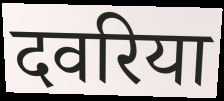
दवरिया